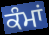
ਕੰਮਾਂ